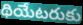
థియేటరుకు